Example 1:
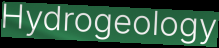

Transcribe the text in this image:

Hydrogeology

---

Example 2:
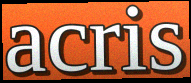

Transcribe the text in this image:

acris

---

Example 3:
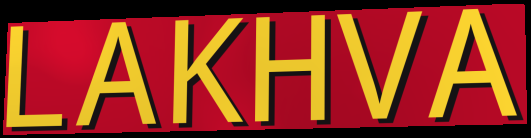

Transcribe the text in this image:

LAKHVA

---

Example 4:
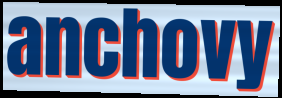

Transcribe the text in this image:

anchovy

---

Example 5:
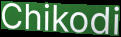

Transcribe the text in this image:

Chikodi